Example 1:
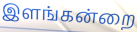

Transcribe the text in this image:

இளங்கன்றை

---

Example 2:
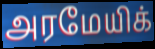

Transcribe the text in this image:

அரமேயிக்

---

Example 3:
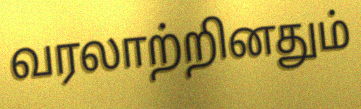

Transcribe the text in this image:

வரலாற்றினதும்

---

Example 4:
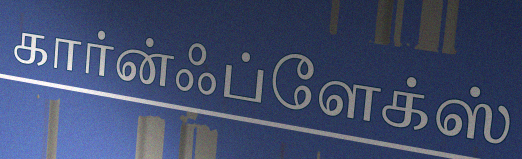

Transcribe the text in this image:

கார்ன்ஃப்ளேக்ஸ்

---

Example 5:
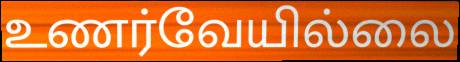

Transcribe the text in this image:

உணர்வேயில்லை